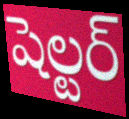
షెల్టర్